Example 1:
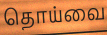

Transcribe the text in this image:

தொய்வை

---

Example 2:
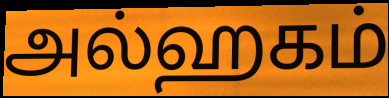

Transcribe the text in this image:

அல்ஹகம்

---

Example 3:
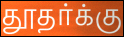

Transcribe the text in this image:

தூதர்க்கு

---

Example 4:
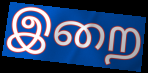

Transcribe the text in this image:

இறை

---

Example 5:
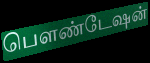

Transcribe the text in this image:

பௌண்டேஷன்